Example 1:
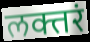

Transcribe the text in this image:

लक्तरं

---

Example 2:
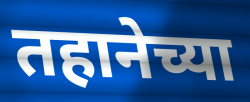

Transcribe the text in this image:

तहानेच्या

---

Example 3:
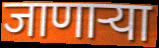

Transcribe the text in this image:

जाणार्‍या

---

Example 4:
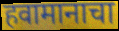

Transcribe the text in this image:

हवामानाचा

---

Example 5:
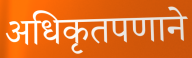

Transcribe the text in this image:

अधिकृतपणाने